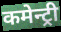
कमेन्ट्री